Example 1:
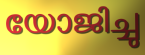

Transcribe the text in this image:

യോജിച്ചു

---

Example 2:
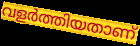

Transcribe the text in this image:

വളർത്തിയതാണ്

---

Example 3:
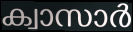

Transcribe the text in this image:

ക്വാസാർ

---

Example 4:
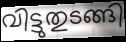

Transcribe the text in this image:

വിട്ടുതുടങ്ങി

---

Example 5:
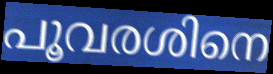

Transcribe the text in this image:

പൂവരശിനെ